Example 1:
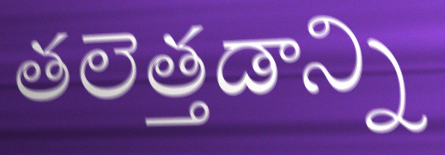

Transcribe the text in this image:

తలెత్తడాన్ని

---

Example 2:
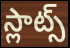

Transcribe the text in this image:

స్లాట్స్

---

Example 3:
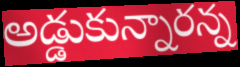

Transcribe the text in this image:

అడ్డుకున్నారన్న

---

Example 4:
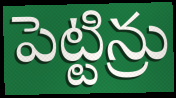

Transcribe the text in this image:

పెట్టిన్రు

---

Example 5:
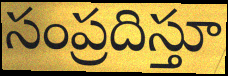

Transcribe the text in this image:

సంప్రదిస్తూ